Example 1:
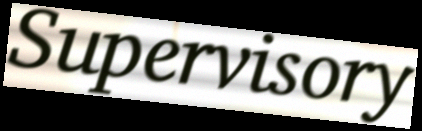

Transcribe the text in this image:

Supervisory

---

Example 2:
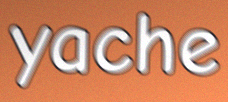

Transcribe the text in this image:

yache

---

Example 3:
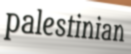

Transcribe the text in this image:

palestinian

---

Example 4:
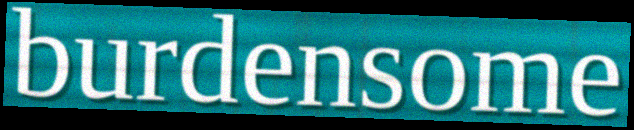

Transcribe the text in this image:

burdensome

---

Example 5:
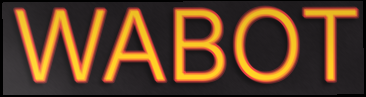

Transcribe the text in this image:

WABOT